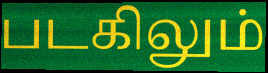
படகிலும்